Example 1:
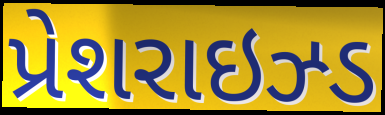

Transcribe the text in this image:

પ્રેશરાઇઝ્ડ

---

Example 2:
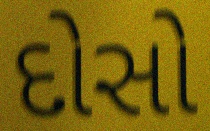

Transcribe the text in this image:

દોસો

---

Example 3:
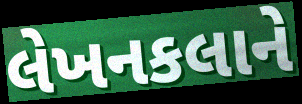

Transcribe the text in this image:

લેખનકલાને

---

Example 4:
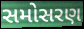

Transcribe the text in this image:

સમોસરણ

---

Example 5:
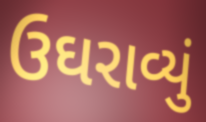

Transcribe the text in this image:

ઉઘરાવ્યું